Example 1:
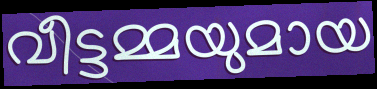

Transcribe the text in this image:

വീട്ടമ്മയുമായ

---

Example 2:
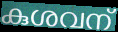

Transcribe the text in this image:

കുശവന്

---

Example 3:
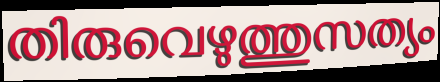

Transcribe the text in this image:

തിരുവെഴുത്തുസത്യം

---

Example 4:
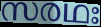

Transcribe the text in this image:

സരഥഃ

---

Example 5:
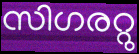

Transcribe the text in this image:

സിഗരറ്റു